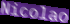
Nicolao